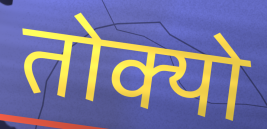
तोक्यो